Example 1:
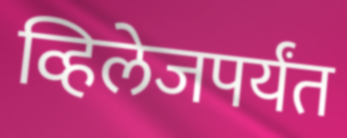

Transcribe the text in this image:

व्हिलेजपर्यंत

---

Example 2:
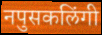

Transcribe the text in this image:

नपुसकलिंगी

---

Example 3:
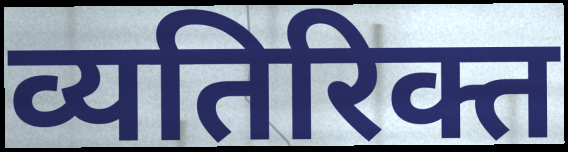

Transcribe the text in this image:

व्यतिरिक्त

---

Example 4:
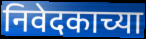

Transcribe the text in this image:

निवेदकाच्या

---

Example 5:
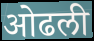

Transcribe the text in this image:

ओढली